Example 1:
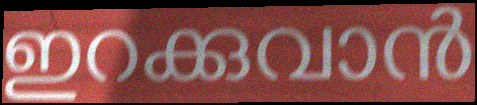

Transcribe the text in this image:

ഇറക്കുവാൻ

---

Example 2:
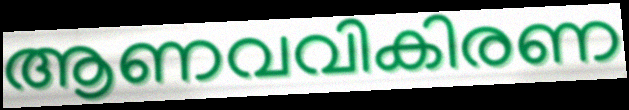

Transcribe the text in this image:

ആണവവികിരണ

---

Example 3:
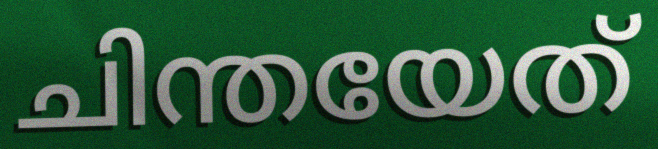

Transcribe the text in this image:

ചിന്തയേത്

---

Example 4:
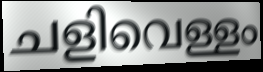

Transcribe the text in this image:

ചളിവെള്ളം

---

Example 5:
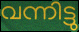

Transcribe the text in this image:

വന്നിട്ടു